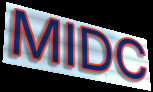
MIDC